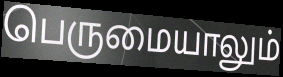
பெருமையாலும்